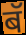
बॅ